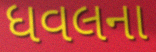
ધવલના